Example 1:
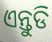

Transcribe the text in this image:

ଏନ୍ତୁଡି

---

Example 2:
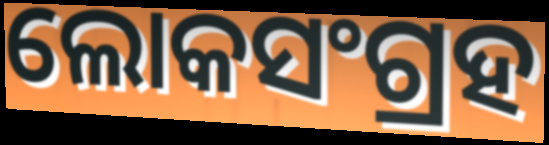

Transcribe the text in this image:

ଲୋକସଂଗ୍ରହ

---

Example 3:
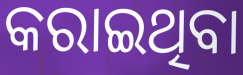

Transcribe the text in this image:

କରାଇଥିବା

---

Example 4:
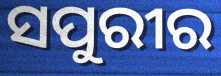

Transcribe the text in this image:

ସପୁରୀର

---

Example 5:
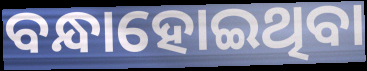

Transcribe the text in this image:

ବନ୍ଧାହୋଇଥିବା